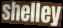
shelley